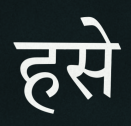
हसे